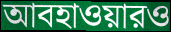
আবহাওয়ারও